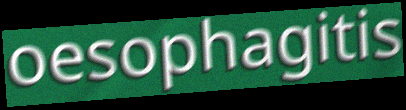
oesophagitis